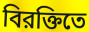
বিরক্তিতে